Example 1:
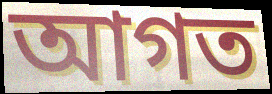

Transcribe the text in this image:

আগত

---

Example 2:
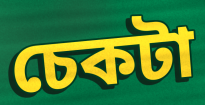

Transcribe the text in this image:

চেকটা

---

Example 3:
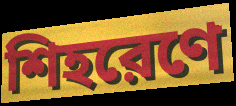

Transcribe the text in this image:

শিহরেণে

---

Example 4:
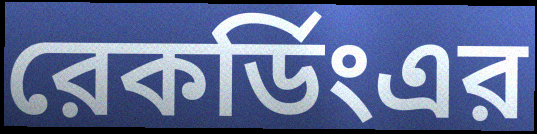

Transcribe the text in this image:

রেকর্ডিংএর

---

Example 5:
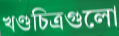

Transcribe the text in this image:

খণ্ডচিত্রগুলো